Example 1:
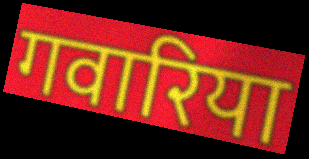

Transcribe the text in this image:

गवारिया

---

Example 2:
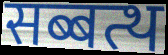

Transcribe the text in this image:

सब्बत्थ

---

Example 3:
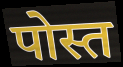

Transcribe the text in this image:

पोस्त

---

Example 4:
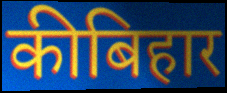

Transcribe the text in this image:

कीबिहार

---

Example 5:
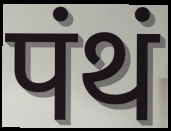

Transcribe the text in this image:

पंथं